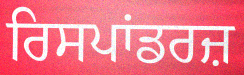
ਰਿਸਪਾਂਡਰਜ਼